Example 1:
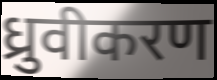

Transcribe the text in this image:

ध्रुवीकरण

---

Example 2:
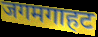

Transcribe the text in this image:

जगमगाहट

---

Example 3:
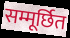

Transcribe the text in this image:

सम्मूर्छित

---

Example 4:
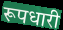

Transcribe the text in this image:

रूपधारी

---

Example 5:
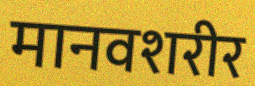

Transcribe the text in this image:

मानवशरीर